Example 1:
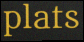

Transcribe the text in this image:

plats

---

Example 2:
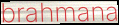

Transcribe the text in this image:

brahmana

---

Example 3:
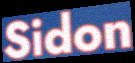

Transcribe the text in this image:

Sidon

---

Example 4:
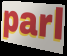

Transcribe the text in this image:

parl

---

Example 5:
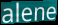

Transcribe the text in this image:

alene